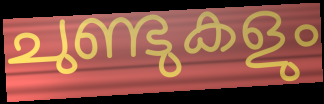
ചുണ്ടുകളും